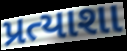
પ્રત્યાશા